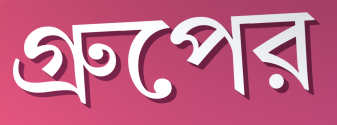
গ্রুপের